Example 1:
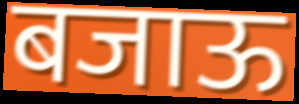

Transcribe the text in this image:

बजाऊ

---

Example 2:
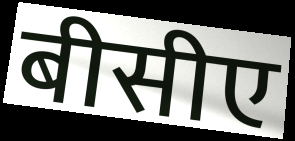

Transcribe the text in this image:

बीसीए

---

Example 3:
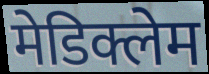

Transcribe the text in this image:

मेडिक्लेम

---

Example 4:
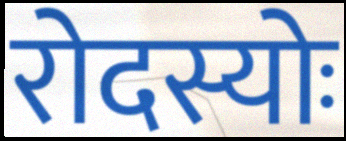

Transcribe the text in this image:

रोदस्योः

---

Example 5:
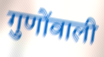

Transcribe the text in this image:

गुणोंवाली